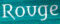
Rouge